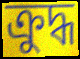
ক্ৰুদ্ধ